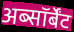
अब्सॉर्बेंट